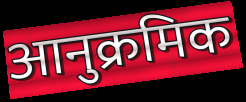
आनुक्रमिक